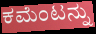
ಕಮೆಂಟನ್ನು